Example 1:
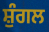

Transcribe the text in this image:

ਸ਼ੁੰਗਲ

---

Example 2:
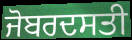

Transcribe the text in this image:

ਜੋਬਰਦਸਤੀ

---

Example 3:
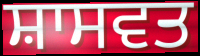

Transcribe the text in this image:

ਸ਼ਾਸਵਤ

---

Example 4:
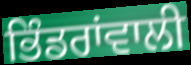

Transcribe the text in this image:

ਭਿੰਡਰਾਂਵਾਲੀ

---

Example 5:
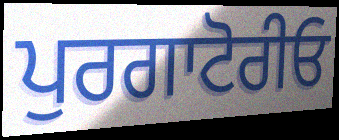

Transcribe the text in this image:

ਪੁਰਗਾਟੋਰੀਓ